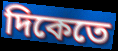
দিকেতে